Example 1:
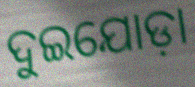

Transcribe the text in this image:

ଦୁଇଯୋଡ଼ା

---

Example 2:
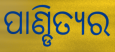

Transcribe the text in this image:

ପାଣ୍ଡିତ୍ୟର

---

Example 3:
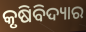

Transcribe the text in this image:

କୃଷିବିଦ୍ୟାର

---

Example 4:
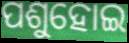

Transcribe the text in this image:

ପଶୁହୋଇ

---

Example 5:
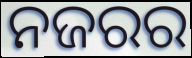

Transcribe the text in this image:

ନଜରର